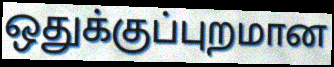
ஒதுக்குப்புறமான